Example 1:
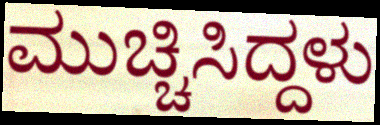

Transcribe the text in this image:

ಮುಚ್ಚಿಸಿದ್ದಳು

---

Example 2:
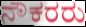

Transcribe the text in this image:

ನೌಕರರು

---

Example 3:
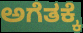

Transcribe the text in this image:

ಅಗೆತಕ್ಕೆ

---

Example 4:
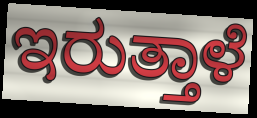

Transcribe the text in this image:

ಇರುತ್ತಾಳೆ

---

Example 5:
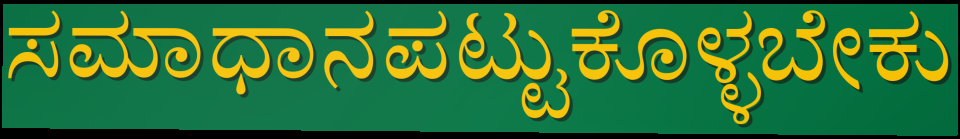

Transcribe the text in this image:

ಸಮಾಧಾನಪಟ್ಟುಕೊಳ್ಳಬೇಕು